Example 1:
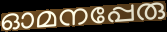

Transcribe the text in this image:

ഓമനപ്പേരു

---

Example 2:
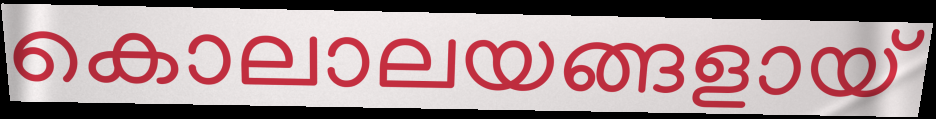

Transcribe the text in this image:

കൊലാലയങ്ങളായ്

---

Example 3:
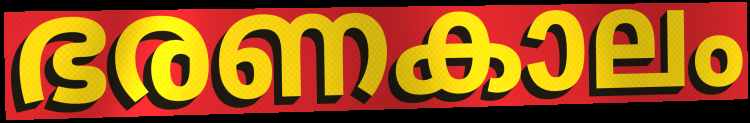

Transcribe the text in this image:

ഭരണകാലം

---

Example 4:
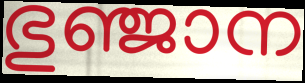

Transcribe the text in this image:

ഭുഞ്ജാന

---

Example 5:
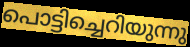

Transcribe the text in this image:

പൊട്ടിച്ചെറിയുന്നു